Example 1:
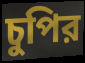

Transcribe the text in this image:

চুপির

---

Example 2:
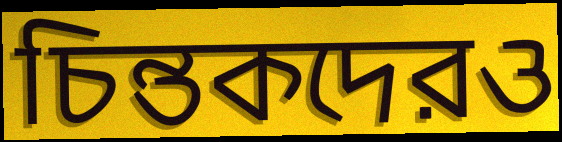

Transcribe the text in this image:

চিন্তকদেরও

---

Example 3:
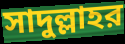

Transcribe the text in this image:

সাদুল্লাহর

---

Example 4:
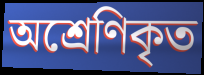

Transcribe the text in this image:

অশ্রেণিকৃত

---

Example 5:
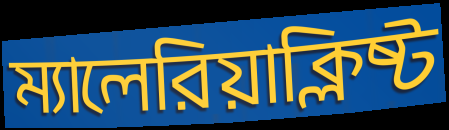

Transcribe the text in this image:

ম্যালেরিয়াক্লিষ্ট